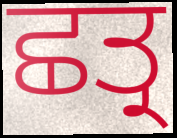
ਛਤ੍ਰ